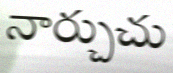
నార్చుచు